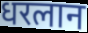
धरलान